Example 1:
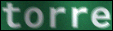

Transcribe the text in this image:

torre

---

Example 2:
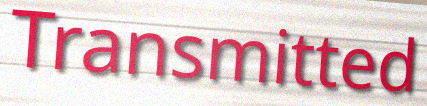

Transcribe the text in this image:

Transmitted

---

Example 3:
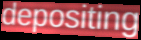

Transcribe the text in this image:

depositing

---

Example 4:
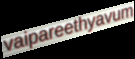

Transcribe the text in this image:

vaipareethyavum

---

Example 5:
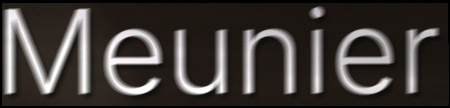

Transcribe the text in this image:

Meunier